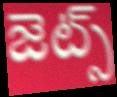
జెట్స్